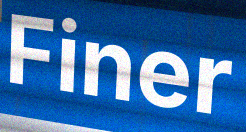
Finer